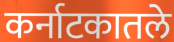
कर्नाटकातले